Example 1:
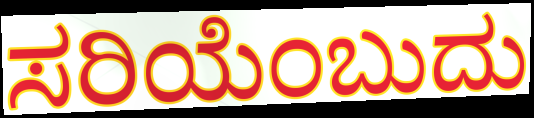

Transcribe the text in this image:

ಸರಿಯೆಂಬುದು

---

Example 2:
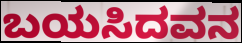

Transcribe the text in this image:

ಬಯಸಿದವನ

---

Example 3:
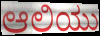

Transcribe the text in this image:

ಆಲಿಯು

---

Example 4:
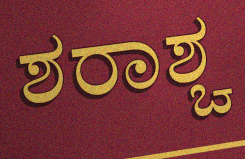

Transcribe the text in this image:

ಶರಾಶ್ಚ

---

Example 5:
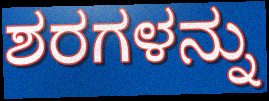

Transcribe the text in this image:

ಶರಗಳನ್ನು